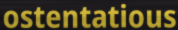
ostentatious